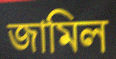
জামিল